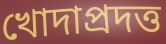
খোদাপ্রদত্ত